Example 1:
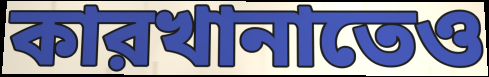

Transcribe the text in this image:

কারখানাতেও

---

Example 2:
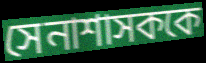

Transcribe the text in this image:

সেনাশাসককে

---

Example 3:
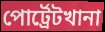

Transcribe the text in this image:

পোর্ট্রেটখানা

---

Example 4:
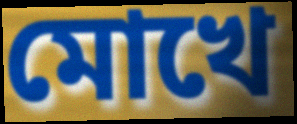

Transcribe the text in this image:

মোখে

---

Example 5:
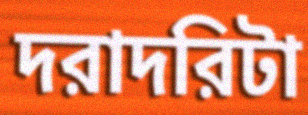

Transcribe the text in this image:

দরাদরিটা